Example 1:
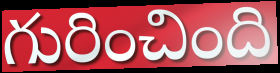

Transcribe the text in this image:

గురించింది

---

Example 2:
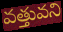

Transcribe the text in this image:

వత్తువని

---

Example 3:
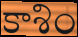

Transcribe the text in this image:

కాశిం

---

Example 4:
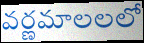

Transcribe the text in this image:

వర్ణమాలలలో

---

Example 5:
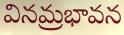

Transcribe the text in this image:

వినమ్రభావన